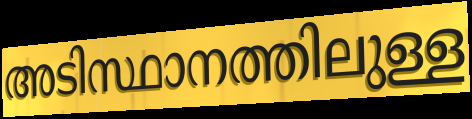
അടിസ്ഥാനത്തിലുള്ള